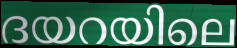
ദയറയിലെ